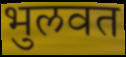
भुलवत